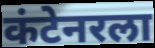
कंटेनरला